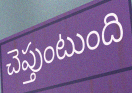
చెప్తుంటుంది